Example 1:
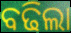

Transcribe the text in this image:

ବଢିଲା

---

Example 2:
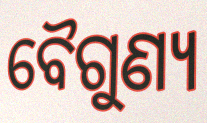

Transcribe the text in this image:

ବୈଗୁଣ୍ୟ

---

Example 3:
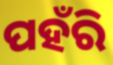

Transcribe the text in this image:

ପହଁରି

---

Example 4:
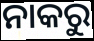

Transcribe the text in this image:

ନାକରୁ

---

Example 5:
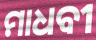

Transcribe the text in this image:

ମାଧବୀ